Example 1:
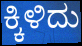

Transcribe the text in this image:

ಕ್ಕಿಳಿದು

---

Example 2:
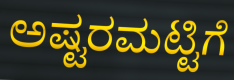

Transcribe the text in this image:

ಅಷ್ಟರಮಟ್ಟಿಗೆ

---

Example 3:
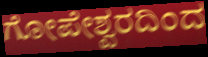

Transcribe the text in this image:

ಗೋಪೇಶ್ವರದಿಂದ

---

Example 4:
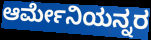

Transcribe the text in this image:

ಆರ್ಮೇನಿಯನ್ನರ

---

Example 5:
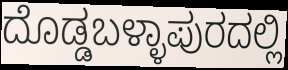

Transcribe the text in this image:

ದೊಡ್ಡಬಳ್ಳಾಪುರದಲ್ಲಿ